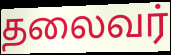
தலைவர்